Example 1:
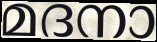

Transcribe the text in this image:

മദനാ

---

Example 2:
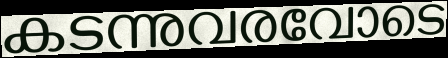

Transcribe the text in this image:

കടന്നുവരവോടെ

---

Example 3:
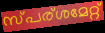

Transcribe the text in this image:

സ്പര്ശമേറ്റ്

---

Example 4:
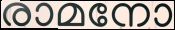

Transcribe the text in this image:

രാമനോ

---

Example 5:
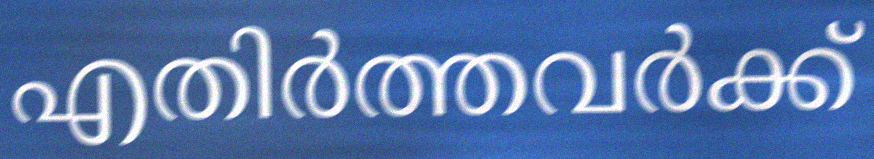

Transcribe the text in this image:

എതിർത്തവർക്ക്